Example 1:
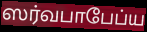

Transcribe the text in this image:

ஸர்வபாபேப்ய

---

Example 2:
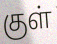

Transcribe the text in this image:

குள்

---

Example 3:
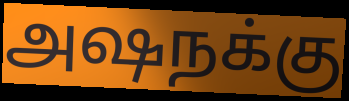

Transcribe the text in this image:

அஷநக்கு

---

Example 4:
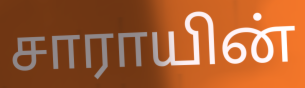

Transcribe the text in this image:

சாராயின்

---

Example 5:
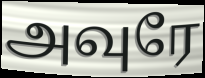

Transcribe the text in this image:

அவுரே